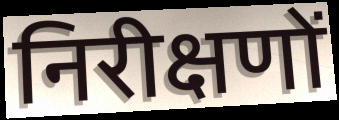
निरीक्षणों